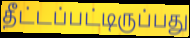
தீட்டப்பட்டிருப்பது